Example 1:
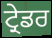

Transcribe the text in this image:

ਟ੍ਰੇਡਰ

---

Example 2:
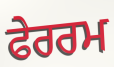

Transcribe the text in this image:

ਫੇਰਰਮ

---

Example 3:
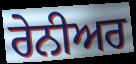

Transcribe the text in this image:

ਰੇਨੀਅਰ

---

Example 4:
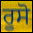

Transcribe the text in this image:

ਰੂਸੋ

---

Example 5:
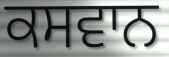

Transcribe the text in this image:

ਕਸਵਾਨ